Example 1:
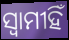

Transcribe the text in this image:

ସ୍ଵାମୀହିଁ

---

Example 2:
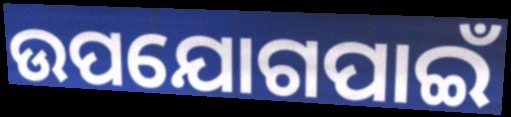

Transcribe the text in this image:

ଉପଯୋଗପାଇଁ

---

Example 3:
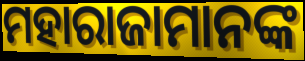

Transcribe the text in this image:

ମହାରାଜାମାନଙ୍କ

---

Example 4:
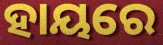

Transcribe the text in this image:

ହାୟରେ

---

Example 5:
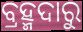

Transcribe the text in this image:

ବ୍ରହ୍ମଦାରୁ